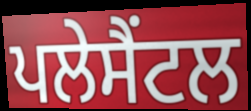
ਪਲੇਸੈਂਟਲ